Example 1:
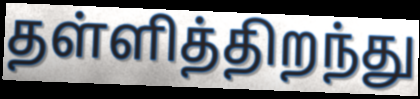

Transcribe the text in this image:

தள்ளித்திறந்து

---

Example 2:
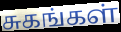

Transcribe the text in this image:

சுகங்கள்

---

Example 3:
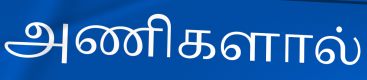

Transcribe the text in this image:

அணிகளால்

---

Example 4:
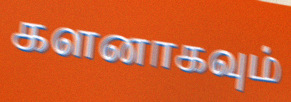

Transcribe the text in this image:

களனாகவும்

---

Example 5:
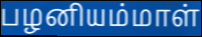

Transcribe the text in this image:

பழனியம்மாள்